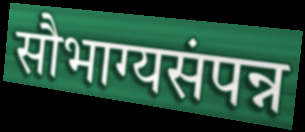
सौभाग्यसंपन्न